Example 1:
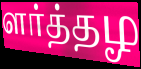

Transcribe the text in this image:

ளர்த்தழ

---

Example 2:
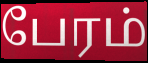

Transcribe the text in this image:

பேரம்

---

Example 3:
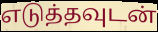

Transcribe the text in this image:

எடுத்தவுடன்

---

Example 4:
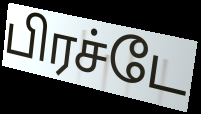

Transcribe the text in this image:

பிரச்டே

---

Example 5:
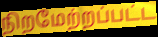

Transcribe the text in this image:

நிறமேற்றப்பட்ட